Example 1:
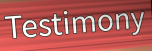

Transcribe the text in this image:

Testimony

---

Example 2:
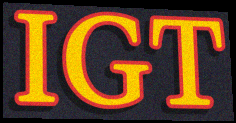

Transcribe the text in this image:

IGT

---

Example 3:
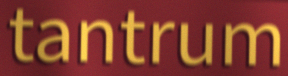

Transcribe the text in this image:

tantrum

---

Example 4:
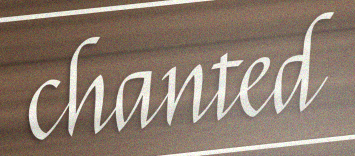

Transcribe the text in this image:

chanted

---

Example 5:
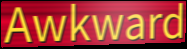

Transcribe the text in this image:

Awkward